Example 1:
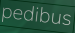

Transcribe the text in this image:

pedibus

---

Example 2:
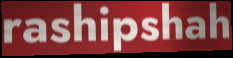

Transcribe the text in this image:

rashipshah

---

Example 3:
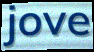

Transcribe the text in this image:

jove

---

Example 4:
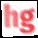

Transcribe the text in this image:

hg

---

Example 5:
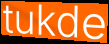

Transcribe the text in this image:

tukde